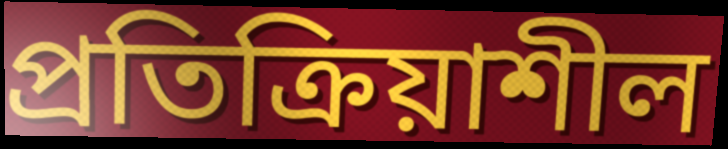
প্রতিক্রিয়াশীল